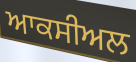
ਆਕਸੀਅਲ